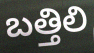
బత్తిలి